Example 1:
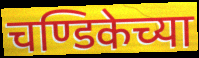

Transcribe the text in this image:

चण्डिकेच्या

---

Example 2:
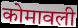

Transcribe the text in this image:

कोमावली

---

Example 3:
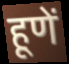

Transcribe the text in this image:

हूणें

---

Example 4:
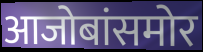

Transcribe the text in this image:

आजोबांसमोर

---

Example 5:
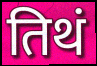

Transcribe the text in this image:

तिथं